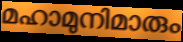
മഹാമുനിമാരും